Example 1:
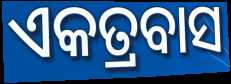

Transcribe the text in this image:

ଏକତ୍ରବାସ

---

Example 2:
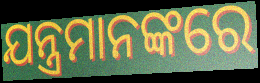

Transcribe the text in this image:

ଯନ୍ତ୍ରମାନଙ୍କରେ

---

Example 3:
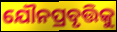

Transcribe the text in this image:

ଯୌନପ୍ରବୃତ୍ତିକୁ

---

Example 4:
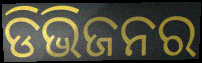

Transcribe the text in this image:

ଡିଭିଜନର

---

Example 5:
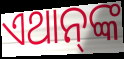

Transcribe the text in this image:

ଏଥାନ୍‍ଙ୍କ